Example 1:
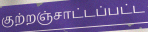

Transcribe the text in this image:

குற்றஞ்சாட்டப்பட்ட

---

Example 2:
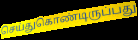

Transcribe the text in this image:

செய்துகொண்டிருப்பது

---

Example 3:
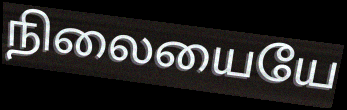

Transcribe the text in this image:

நிலையையே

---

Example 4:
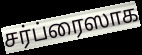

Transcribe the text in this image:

சர்ப்ரைஸாக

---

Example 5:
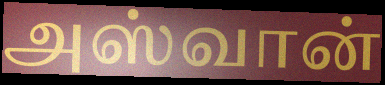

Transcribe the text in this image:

அஸ்வான்